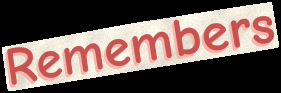
Remembers